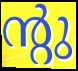
ന്റു